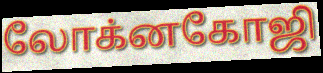
லோக்னகோஜி